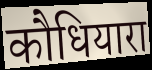
कौधियारा